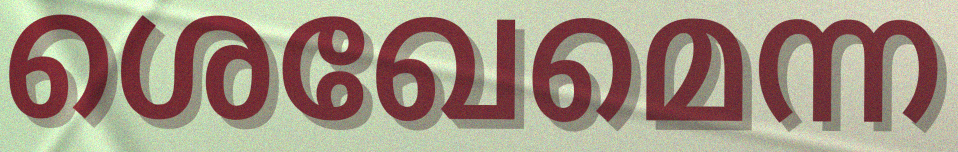
ശെഖേമെന്ന